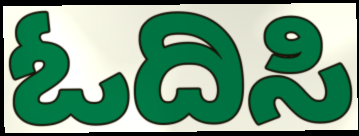
ಓದಿಸಿ